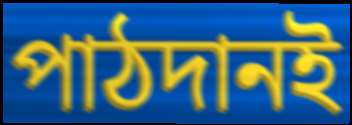
পাঠদানই